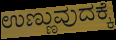
ಉಣ್ಣುವುದಕ್ಕೆ